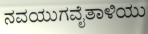
ನವಯುಗವೈತಾಳಿಯು